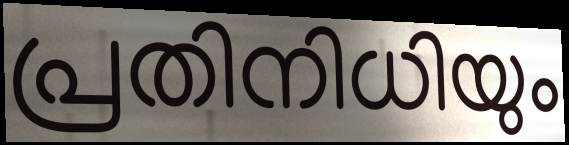
പ്രതിനിധിയും